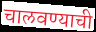
चालवण्याची